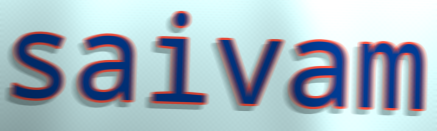
saivam